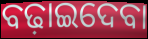
ବଢ଼ାଇଦେବା